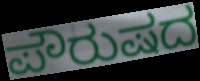
ಪೌರುಷದ